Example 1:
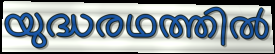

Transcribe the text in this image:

യുദ്ധരഥത്തിൽ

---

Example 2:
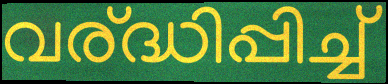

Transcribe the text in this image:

വര്ദ്ധിപ്പിച്ച്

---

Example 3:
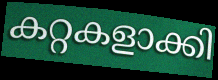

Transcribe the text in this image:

കറ്റകളാക്കി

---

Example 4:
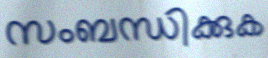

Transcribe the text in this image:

സംബന്ധിക്കുക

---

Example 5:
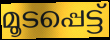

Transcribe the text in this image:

മൂടപ്പെട്ട്